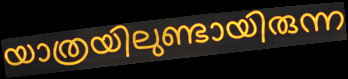
യാത്രയിലുണ്ടായിരുന്ന